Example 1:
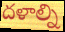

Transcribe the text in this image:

దళాల్ని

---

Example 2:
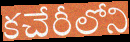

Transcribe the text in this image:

కచేరీలోని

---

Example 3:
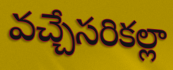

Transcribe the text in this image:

వచ్చేసరికల్లా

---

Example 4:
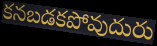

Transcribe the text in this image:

కనబడకపోవుదురు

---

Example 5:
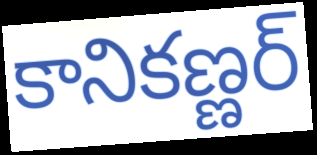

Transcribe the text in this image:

కానికణ్ణర్